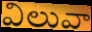
విలువా